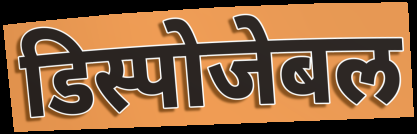
डिस्पोजेबल